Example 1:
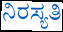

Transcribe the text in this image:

ನಿರಸ್ಯತಿ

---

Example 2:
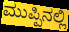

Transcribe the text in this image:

ಮುಪ್ಪಿನಲ್ಲಿ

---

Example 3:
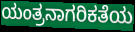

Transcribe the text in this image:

ಯಂತ್ರನಾಗರಿಕತೆಯ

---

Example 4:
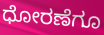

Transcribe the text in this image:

ಧೋರಣೆಗೂ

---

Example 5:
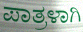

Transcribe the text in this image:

ಪಾತ್ರಳಾಗಿ